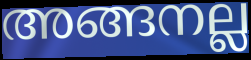
അങ്ങനല്ല